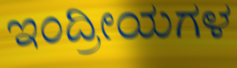
ಇಂದ್ರೀಯಗಳ